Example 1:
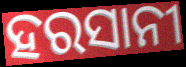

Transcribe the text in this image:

ହରସାନୀ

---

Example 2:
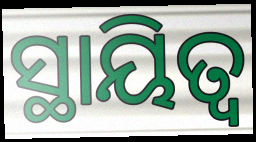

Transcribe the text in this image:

ସ୍ଥାୟିତ୍ୱ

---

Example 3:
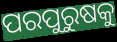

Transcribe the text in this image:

ପରପୁରୁଷକୁ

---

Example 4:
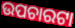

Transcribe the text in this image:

ଉପଚାରଟା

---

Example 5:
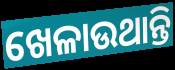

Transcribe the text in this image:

ଖେଳାଉଥାନ୍ତି